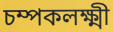
চম্পকলক্ষ্মী